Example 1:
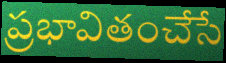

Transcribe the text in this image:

ప్రభావితంచేసే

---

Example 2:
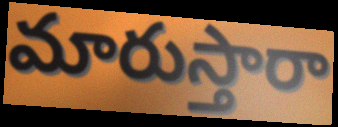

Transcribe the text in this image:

మారుస్తారా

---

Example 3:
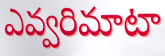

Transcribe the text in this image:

ఎవ్వరిమాటా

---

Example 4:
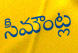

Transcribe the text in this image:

సీమౌంట్ల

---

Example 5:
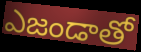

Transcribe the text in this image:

ఎజండాతో